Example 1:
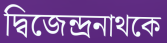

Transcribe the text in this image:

দ্বিজেন্দ্রনাথকে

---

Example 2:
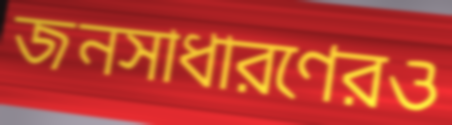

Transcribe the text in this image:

জনসাধারণেরও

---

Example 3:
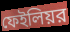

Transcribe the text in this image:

ফেইলিয়র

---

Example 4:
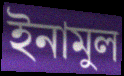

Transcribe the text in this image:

ইনামুল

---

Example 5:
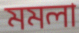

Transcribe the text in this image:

মমলা